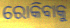
ରୋକିବାକୁ